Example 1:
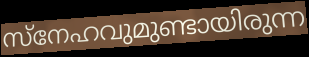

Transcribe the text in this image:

സ്നേഹവുമുണ്ടായിരുന്ന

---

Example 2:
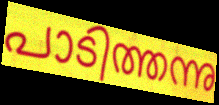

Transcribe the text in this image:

പാടിത്തന്നു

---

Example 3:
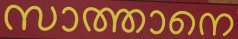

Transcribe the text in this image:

സാത്താനെ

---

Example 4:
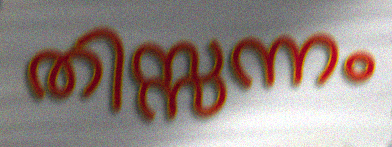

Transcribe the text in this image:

തിസ്സന്നം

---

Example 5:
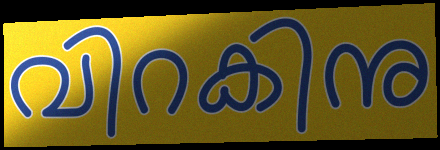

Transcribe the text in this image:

വിറകിനു